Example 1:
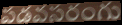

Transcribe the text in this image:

పడవసరంగు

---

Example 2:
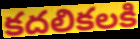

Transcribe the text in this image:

కదలికలకి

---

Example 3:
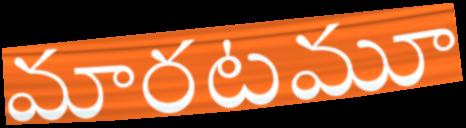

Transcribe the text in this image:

మారటమూ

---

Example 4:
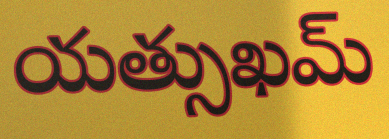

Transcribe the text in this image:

యత్సుఖమ్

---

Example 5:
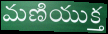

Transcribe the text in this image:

మణియుక్త